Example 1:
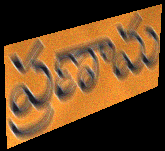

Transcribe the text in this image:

ప్రణామ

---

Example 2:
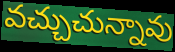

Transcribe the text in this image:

వచ్చుచున్నావు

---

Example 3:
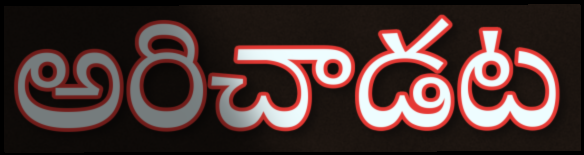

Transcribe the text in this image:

అరిచాడట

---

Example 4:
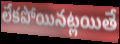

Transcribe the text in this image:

లేకపోయినట్లయితే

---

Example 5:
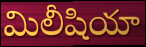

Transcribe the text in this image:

మిలీషియా